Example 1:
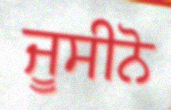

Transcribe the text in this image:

ਜੂਸੀਨੋ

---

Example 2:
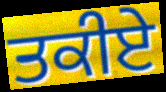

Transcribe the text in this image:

ਤਕੀਏ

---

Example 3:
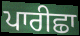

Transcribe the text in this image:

ਪਾਰੀਛਾ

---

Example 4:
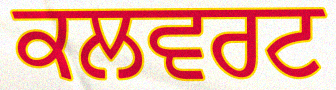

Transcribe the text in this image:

ਕਲਵਰਟ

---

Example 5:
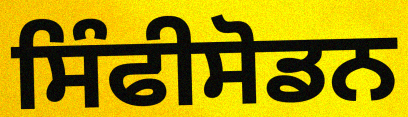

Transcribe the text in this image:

ਸਿੰਫੀਸੋਡਨ